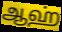
ஆஹ்